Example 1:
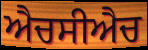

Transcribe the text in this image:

ਐਚਸੀਐਚ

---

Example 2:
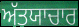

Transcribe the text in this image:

ਅੱਤਯਾਚਾਰ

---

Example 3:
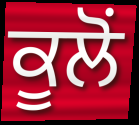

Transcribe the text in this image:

ਕੂਲੋਂ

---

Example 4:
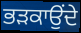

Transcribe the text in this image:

ਭੜਕਾਉਂਦੇ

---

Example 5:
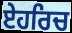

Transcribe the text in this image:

ਏਹਰਿਚ